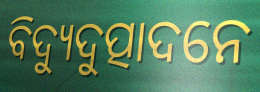
ବିଦ୍ଯୁଦୁତ୍ପାଦନେ